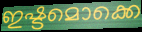
ഇഷ്ടമൊക്കെ